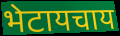
भेटायचाय